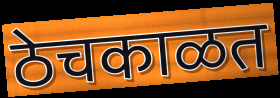
ठेचकाळत